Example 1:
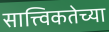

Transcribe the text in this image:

सात्त्विकतेच्या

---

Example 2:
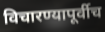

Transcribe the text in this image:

विचारण्यापूर्वीच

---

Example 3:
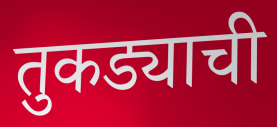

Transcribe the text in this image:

तुकड्याची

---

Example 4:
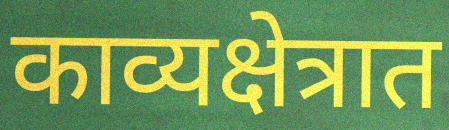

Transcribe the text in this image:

काव्यक्षेत्रात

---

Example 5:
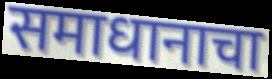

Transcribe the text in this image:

समाधानाचा